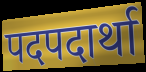
पदपदार्था